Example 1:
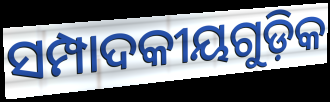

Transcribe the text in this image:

ସମ୍ପାଦକୀୟଗୁଡ଼ିକ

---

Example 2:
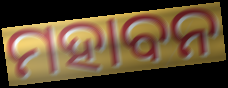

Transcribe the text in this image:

ମହାବନ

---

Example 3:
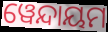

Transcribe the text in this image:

ୱେନ୍ଦାୟମ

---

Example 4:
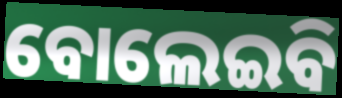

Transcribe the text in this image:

ବୋଲେଇବି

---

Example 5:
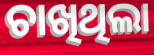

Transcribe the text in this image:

ଚାଖିଥିଲା